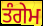
ਤੰਗੇਮ